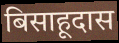
बिसाहूदास